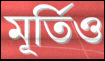
মূৰ্তিও